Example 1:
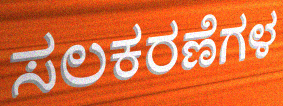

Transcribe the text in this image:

ಸಲಕರಣೆಗಳ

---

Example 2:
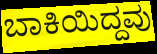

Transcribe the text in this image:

ಬಾಕಿಯಿದ್ದವು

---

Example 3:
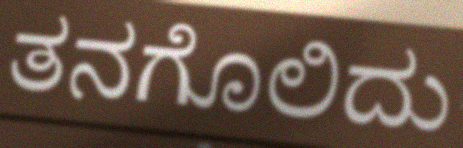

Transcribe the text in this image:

ತನಗೊಲಿದು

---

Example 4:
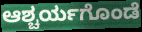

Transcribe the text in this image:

ಆಶ್ಚರ್ಯಗೊಂಡೆ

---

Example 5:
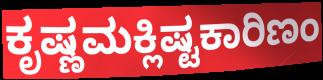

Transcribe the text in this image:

ಕೃಷ್ಣಮಕ್ಲಿಷ್ಟಕಾರಿಣಂ